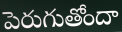
పెరుగుతోందా